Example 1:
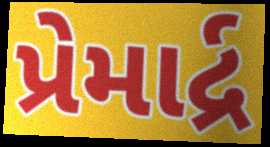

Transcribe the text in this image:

પ્રેમાર્દ્ર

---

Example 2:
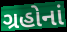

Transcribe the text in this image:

ગ્રહોનાં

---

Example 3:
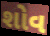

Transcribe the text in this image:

શોવ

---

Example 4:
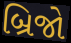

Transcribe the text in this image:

બ્રિજો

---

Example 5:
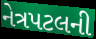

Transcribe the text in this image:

નેત્રપટલની